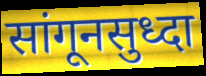
सांगूनसुध्दा